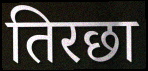
तिरछा